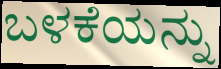
ಬಳಕೆಯನ್ನು